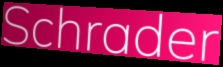
Schrader